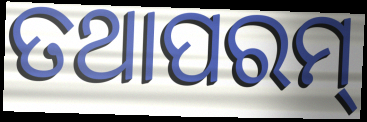
ତଥାପରମ୍